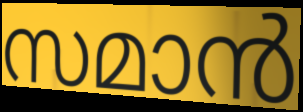
സമാൻ